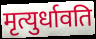
मृत्युर्धावति